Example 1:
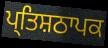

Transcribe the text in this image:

ਪ੍ਤਿਸ਼ਠਾਪਕ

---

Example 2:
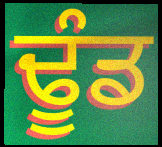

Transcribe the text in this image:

ਢੂੰਡ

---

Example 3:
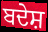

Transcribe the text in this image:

ਬਦੇਸ਼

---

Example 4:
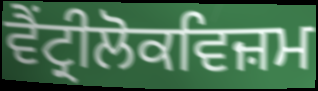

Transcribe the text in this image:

ਵੈਂਟ੍ਰੀਲੋਕਵਿਜ਼ਮ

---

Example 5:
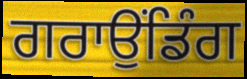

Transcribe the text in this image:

ਗਰਾਉਂਡਿੰਗ